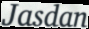
Jasdan